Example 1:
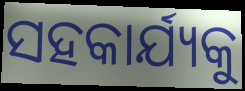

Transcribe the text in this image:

ସହକାର୍ଯ୍ୟକୁ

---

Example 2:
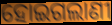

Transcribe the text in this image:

ହୋଇଗଲାଣୀ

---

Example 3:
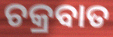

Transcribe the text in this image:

ଚକ୍ରବାତ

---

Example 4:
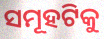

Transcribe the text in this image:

ସମୂହଟିକୁ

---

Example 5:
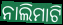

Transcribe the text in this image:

ନାଲିମାଟି